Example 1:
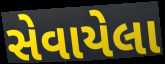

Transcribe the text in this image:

સેવાયેલા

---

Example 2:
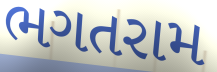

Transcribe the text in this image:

ભગતરામ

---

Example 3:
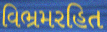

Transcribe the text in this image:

વિભ્રમરહિત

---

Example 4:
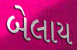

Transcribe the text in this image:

બેલાય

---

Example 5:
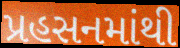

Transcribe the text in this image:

પ્રહસનમાંથી